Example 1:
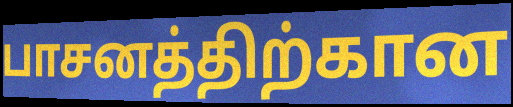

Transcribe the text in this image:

பாசனத்திற்கான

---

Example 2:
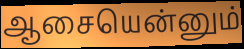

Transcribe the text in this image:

ஆசையென்னும்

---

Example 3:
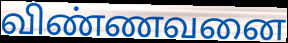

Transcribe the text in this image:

விண்ணவனை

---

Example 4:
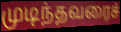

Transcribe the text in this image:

முடிந்தவரைச்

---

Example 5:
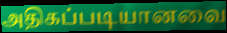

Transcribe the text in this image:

அதிகப்படியானவை